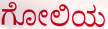
ಗೋಲಿಯ